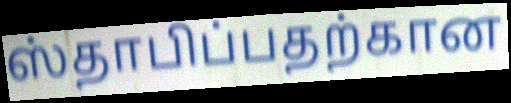
ஸ்தாபிப்பதற்கான